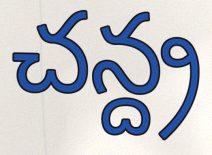
చన్ద్ర